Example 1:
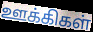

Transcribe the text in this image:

ஊக்கிகள்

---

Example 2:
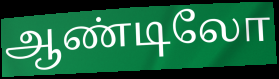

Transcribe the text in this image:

ஆண்டிலோ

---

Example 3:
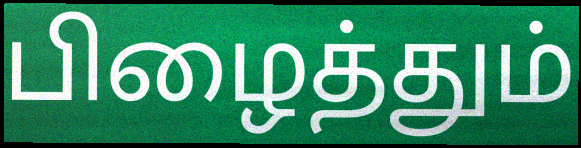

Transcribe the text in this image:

பிழைத்தும்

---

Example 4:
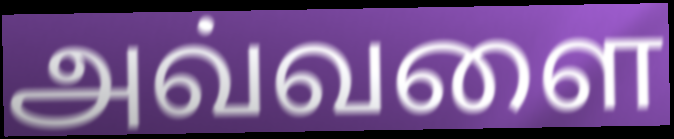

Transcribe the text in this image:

அவ்வளை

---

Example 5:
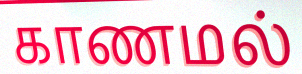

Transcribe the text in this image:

காணமல்